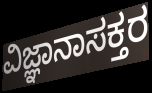
ವಿಜ್ಞಾನಾಸಕ್ತರ